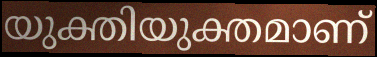
യുക്തിയുക്തമാണ്